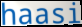
haasi